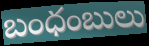
బంధంబులు